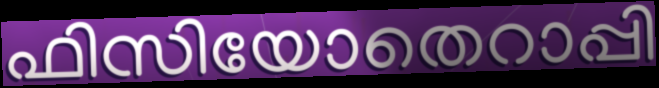
ഫിസിയോതെറാപ്പി